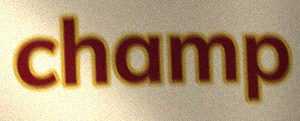
champ